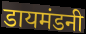
डायमंडनी